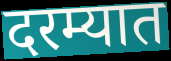
दरम्यात